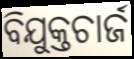
ବିଯୁକ୍ତଚାର୍ଜ